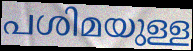
പശിമയുള്ള